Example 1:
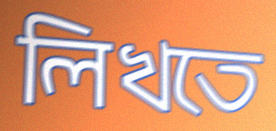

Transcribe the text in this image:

লিখতে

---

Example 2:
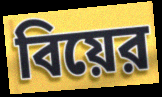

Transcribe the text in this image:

বিয়ের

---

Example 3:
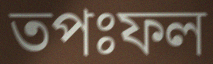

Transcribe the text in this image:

তপঃফল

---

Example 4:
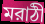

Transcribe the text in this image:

মরাঠী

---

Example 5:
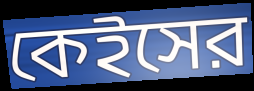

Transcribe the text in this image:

কেইসের